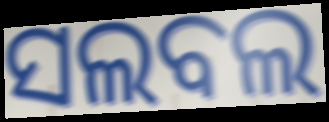
ସଲବଲ